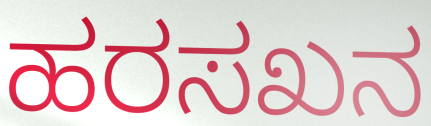
ಹರಸಖನ